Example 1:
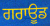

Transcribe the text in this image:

ਗਰਾਊਡ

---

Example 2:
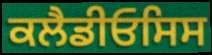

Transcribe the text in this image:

ਕਲੈਡੀਓਸਿਸ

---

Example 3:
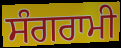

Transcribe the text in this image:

ਸੰਗਰਾਮੀ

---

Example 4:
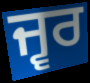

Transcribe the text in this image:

ਜ੍ਵਰ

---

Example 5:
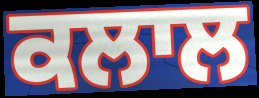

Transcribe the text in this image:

ਕਲਾਲ